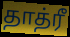
தாத்ரீ